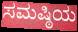
ಸಮಷ್ಠಿಯ